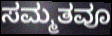
ಸಮ್ಮತವೂ